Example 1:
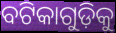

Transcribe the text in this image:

ବଟିକାଗୁଡ଼ିକୁ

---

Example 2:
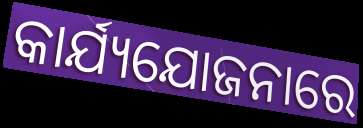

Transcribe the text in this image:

କାର୍ଯ୍ୟଯୋଜନାରେ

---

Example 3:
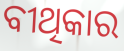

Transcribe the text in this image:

ବୀଥିକାର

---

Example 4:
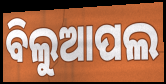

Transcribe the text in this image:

ବିଲୁଆପଲ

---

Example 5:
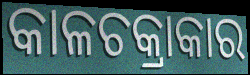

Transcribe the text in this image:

କାଳଚକ୍ରାକାର